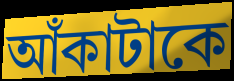
আঁকাটাকে